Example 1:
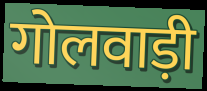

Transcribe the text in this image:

गोलवाड़ी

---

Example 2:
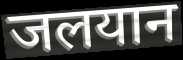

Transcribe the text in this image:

जलयान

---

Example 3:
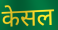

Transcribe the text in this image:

केसल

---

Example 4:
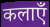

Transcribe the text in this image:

कलाएँ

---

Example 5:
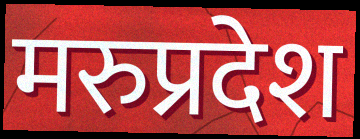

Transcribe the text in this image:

मरुप्रदेश